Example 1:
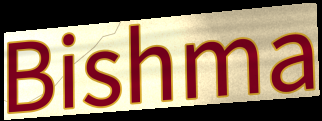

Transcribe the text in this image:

Bishma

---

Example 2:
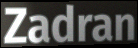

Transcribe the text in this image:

Zadran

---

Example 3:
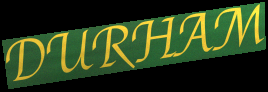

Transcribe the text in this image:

DURHAM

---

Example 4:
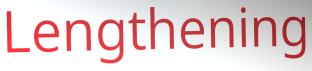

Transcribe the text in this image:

Lengthening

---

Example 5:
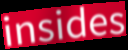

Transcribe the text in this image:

insides